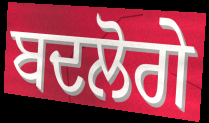
ਬਦਲੋਗੇ